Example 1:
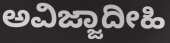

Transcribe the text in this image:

ಅವಿಜ್ಜಾದೀಹಿ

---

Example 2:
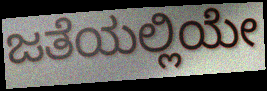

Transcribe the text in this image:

ಜತೆಯಲ್ಲಿಯೇ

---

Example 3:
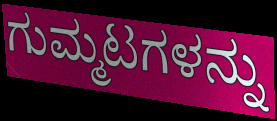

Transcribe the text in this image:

ಗುಮ್ಮಟಗಳನ್ನು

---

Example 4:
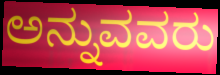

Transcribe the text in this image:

ಅನ್ನುವವರು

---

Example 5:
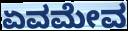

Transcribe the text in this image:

ಏವಮೇವ